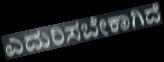
ಎದುರಿಸಬೇಕಾಗಿದೆ